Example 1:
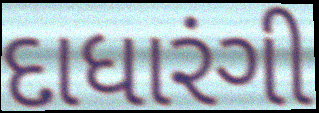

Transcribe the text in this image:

દાધારંગી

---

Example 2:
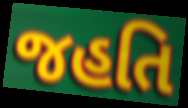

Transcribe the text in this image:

જહતિ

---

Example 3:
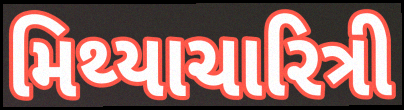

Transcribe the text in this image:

મિથ્યાચારિત્રી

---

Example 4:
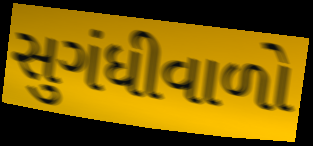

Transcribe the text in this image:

સુગંધીવાળો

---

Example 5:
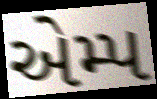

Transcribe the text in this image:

એમ્પ